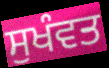
ਸੁਖੰਵਤ